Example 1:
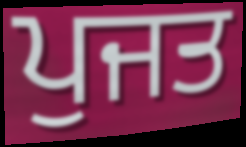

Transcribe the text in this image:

ਪੁਜਤ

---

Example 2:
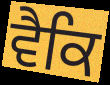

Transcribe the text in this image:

ਵੈਕਿ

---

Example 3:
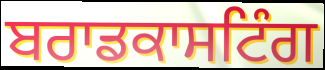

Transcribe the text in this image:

ਬਰਾਡਕਾਸਟਿੰਗ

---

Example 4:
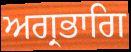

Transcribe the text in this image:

ਅਗ੍ਰਭਾਗਿ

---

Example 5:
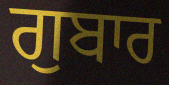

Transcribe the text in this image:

ਗੁਬਾਰ